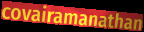
covairamanathan